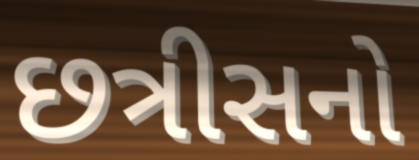
છત્રીસનો